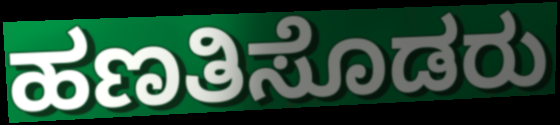
ಹಣತಿಸೊಡರು